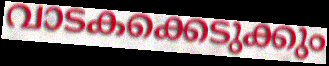
വാടകക്കെടുക്കും